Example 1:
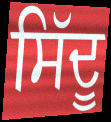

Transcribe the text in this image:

ਸਿੱਦੂ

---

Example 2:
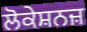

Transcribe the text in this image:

ਲੋਕੇਸ਼ਨਜ਼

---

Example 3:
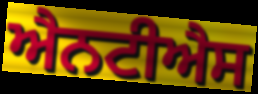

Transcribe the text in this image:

ਐਨਟੀਐਸ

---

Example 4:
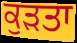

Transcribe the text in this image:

ਕੁੜਤਾ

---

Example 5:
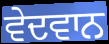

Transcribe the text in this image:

ਵੇਦਵਾਨ